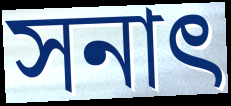
সনাৎ